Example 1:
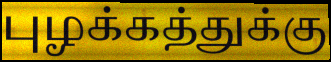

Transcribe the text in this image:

புழக்கத்துக்கு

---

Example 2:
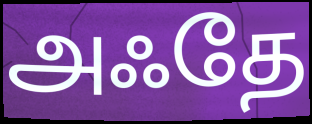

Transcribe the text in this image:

அஃதே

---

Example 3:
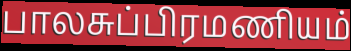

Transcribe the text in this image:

பாலசுப்பிரமணியம்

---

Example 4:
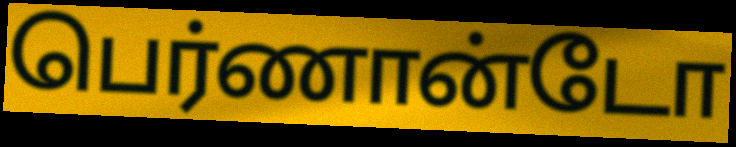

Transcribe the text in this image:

பெர்ணான்டோ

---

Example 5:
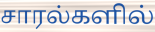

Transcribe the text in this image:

சாரல்களில்